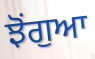
ਝੋਂਗੁਆ